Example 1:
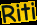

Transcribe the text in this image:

Riti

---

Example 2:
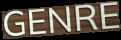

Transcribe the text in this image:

GENRE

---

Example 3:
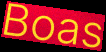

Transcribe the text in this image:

Boas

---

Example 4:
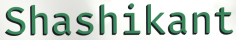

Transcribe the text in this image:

Shashikant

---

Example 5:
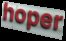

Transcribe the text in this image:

hoper